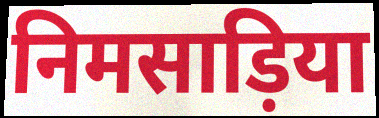
निमसाड़िया